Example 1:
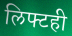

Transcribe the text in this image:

लिफ्टही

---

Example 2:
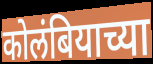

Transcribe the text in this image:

कोलंबियाच्या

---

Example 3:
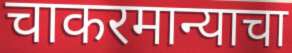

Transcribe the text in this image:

चाकरमान्याचा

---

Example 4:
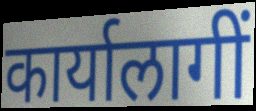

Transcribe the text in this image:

कार्यालागीं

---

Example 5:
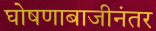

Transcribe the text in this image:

घोषणाबाजीनंतर